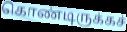
கொண்டிருக்கச்